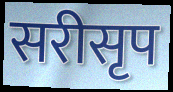
सरीसृप